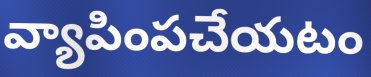
వ్యాపింపచేయటం